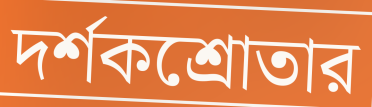
দর্শকশ্রোতার